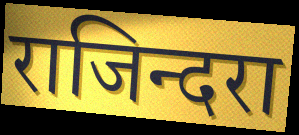
राजिन्दरा